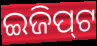
ଇଜିପ୍‍ଟ